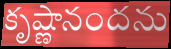
కృష్ణానందను